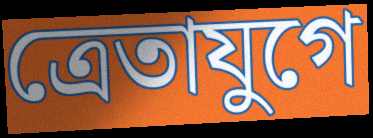
ত্রেতাযুগে